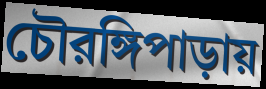
চৌরঙ্গিপাড়ায়